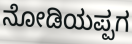
ನೋಡಿಯಪ್ಪಗ